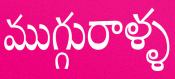
ముగ్గురాళ్ళ